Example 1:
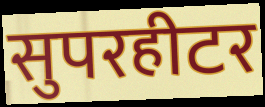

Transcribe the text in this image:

सुपरहीटर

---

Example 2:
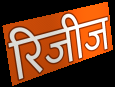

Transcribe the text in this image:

रिजीज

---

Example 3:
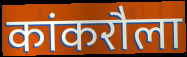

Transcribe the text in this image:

कांकरौला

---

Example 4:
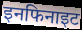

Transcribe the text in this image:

इनफिनाइट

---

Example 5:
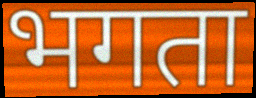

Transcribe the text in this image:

भगता